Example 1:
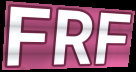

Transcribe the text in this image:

FRF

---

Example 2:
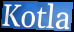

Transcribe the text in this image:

Kotla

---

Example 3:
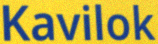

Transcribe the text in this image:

Kavilok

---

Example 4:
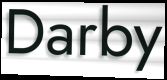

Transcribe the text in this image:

Darby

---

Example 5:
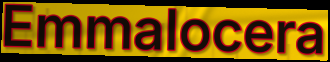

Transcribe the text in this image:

Emmalocera